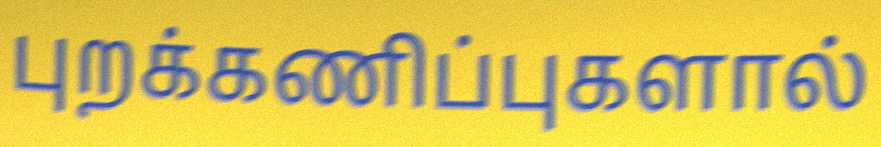
புறக்கணிப்புகளால்